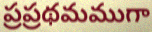
ప్రప్రథమముగా